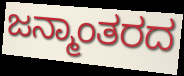
ಜನ್ಮಾಂತರದ